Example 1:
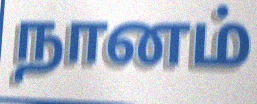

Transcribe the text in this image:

நானம்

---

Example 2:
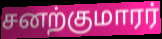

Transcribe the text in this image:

சனற்குமாரர்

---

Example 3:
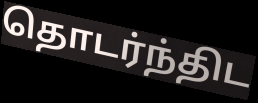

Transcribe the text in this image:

தொடர்ந்திட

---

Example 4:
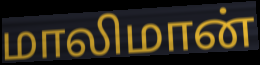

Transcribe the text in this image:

மாலிமான்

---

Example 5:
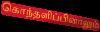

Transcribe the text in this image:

கொந்தளிப்பினாலும்